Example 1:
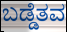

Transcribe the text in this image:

ಬಡ್ಡೆತವ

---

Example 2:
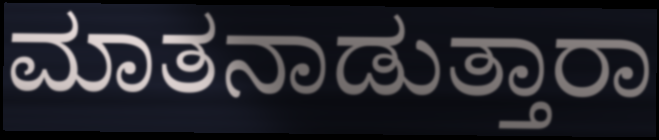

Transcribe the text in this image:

ಮಾತನಾಡುತ್ತಾರಾ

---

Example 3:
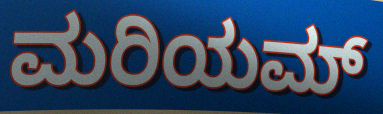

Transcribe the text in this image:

ಮರಿಯಮ್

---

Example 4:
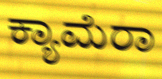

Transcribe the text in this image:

ಕ್ಯಾಮೆರಾ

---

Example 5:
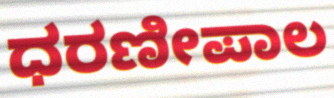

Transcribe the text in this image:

ಧರಣೀಪಾಲ